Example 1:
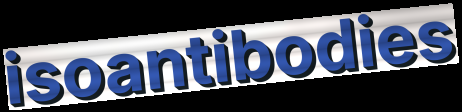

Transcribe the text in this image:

isoantibodies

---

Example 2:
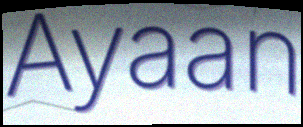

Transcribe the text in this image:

Ayaan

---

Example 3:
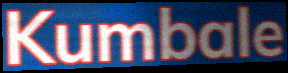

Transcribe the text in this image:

Kumbale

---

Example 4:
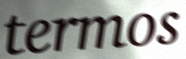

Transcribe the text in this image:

termos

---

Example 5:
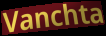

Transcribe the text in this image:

Vanchta